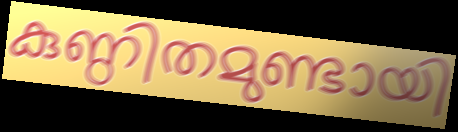
കുണ്ഠിതമുണ്ടായി